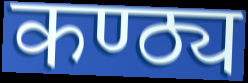
कण्ठ्य